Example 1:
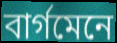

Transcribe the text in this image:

বাৰ্গমেনে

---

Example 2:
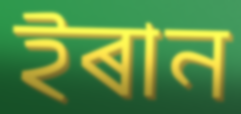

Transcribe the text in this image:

ইৰান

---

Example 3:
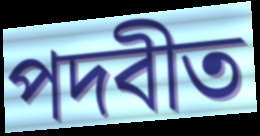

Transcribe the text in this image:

পদবীত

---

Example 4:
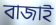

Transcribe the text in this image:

বাজাই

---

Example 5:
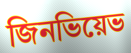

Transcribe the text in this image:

জিনভিয়েভ